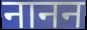
नानन